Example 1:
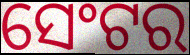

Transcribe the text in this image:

ସେଂଟର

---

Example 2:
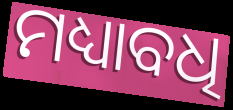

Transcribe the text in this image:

ମଧ୍ୟାବଧି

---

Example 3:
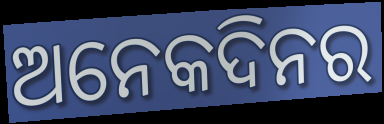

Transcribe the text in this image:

ଅନେକଦିନର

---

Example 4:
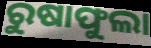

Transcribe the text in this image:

ରୁଷାଫୁଲା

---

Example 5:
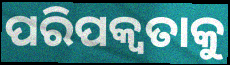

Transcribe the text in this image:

ପରିପକ୍ୱତାକୁ